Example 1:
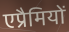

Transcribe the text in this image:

एप्रैमियों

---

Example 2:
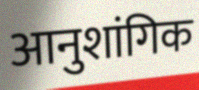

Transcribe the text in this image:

आनुशांगिक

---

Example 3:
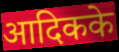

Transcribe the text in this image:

आदिकके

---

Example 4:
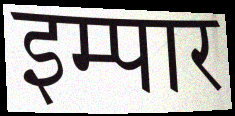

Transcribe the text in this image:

इम्पार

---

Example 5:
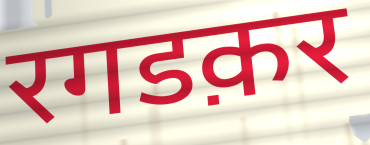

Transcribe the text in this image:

रगडक़र